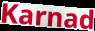
Karnad